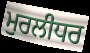
ਮੁਰਲੀਧਰ